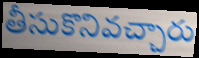
తీసుకొనివచ్చారు